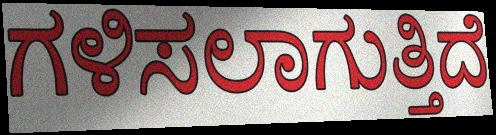
ಗಳಿಸಲಾಗುತ್ತಿದೆ